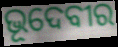
ଭୂଦେବୀର